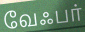
வேஃபர்